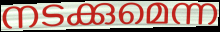
നടക്കുമെന്ന